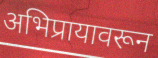
अभिप्रायावरून